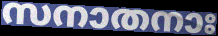
സനാതനാഃ